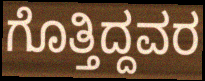
ಗೊತ್ತಿದ್ದವರ